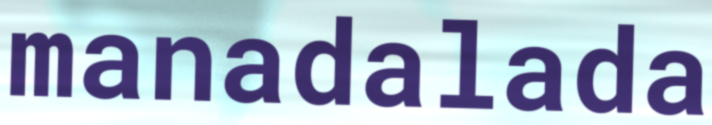
manadalada